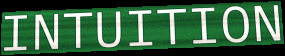
INTUITION